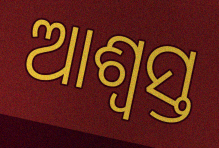
ଆଶ୍ବସ୍ତ